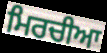
ਮਿਰਚੀਆ